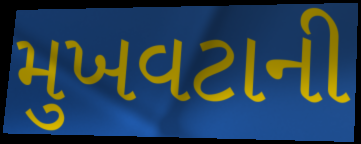
મુખવટાની